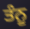
ਤੰਨੂ